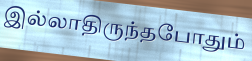
இல்லாதிருந்தபோதும்